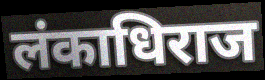
लंकाधिराज